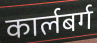
कार्लबर्ग